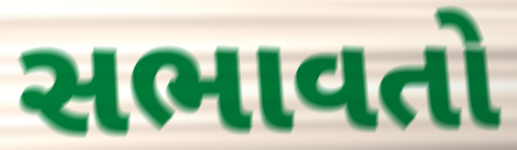
સભાવતો